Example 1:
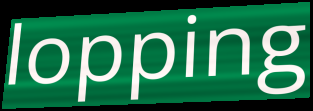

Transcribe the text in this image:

lopping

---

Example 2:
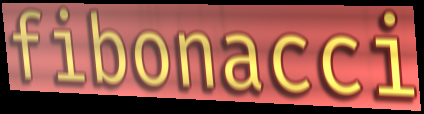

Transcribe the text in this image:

fibonacci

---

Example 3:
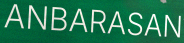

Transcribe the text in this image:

ANBARASAN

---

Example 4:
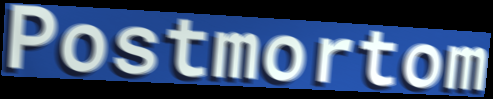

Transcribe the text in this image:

Postmortom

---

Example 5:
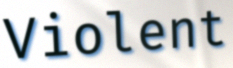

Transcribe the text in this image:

Violent